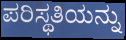
ಪರಿಸ್ಥತಿಯನ್ನು